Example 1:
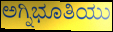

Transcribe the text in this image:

ಅಗ್ನಿಭೂತಿಯು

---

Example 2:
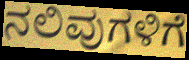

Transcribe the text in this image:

ನಲಿವುಗಳಿಗೆ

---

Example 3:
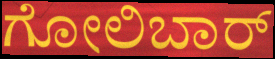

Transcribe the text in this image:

ಗೋಲಿಬಾರ್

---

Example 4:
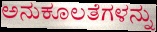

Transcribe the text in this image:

ಅನುಕೂಲತೆಗಳನ್ನು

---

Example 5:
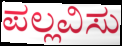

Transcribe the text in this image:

ಪಲ್ಲವಿಸು